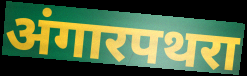
अंगारपथरा